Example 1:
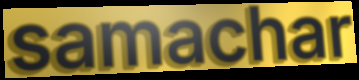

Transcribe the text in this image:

samachar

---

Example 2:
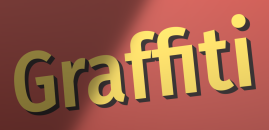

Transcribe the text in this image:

Graffiti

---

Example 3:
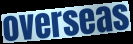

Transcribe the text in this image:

overseas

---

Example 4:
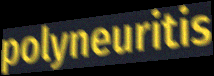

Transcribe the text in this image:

polyneuritis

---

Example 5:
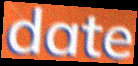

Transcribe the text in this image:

date